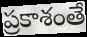
ప్రకాశంతే